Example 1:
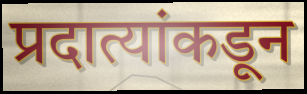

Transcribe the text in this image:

प्रदात्यांकडून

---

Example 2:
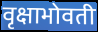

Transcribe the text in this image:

वृक्षाभोवती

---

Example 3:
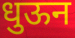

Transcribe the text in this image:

धुऊन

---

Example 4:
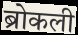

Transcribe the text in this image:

ब्रोकली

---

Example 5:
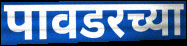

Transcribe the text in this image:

पावडरच्या